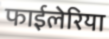
फाईलेरिया